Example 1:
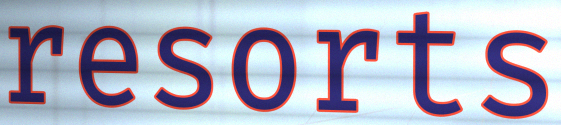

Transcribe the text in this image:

resorts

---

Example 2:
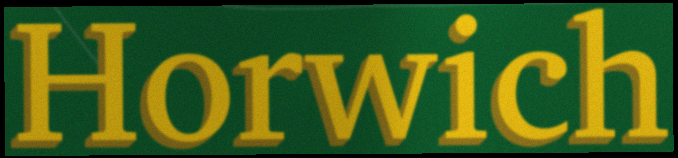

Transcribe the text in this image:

Horwich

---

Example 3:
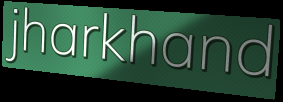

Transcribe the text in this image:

jharkhand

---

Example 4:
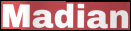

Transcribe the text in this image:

Madian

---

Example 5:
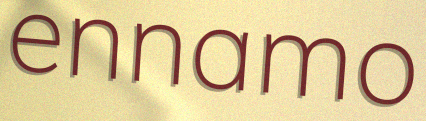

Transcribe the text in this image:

ennamo